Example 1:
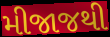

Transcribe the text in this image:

મીજાજથી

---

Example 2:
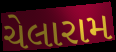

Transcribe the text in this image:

ચેલારામ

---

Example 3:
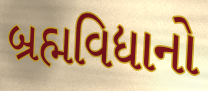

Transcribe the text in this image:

બ્રહ્મવિદ્યાનો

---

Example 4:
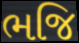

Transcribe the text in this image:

ભજિ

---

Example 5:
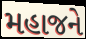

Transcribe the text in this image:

મહાજને